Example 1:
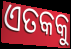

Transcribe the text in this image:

ଏତକକୁ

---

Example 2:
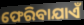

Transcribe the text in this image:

ଫେରିବାଯାଏଁ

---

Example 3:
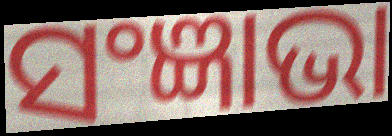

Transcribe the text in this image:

ସଂଜ୍ଞାଭା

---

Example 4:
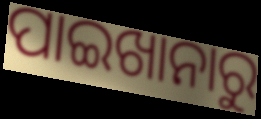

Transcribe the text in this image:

ପାଇଖାନାରୁ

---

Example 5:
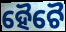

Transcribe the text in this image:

ହୈଚୈ